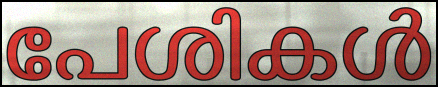
പേശികൾ